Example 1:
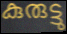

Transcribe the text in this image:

കുരുട്ടു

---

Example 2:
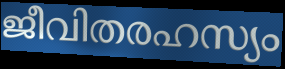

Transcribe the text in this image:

ജീവിതരഹസ്യം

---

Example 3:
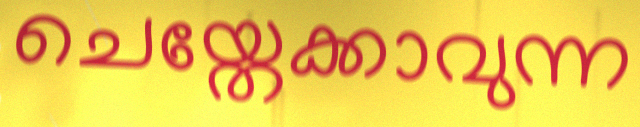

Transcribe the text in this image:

ചെയ്തേക്കാവുന്ന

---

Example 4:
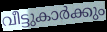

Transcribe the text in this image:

വീട്ടുകാർക്കും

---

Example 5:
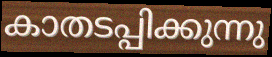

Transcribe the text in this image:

കാതടപ്പിക്കുന്നു